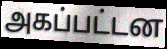
அகப்பட்டன